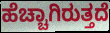
ಹೆಚ್ಚಾಗಿರುತ್ತದೆ